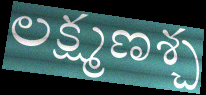
లక్ష్మణశ్చ